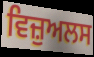
ਵਿਜ਼ੁਅਲਸ